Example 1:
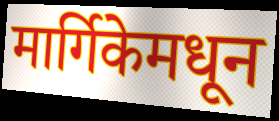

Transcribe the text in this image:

मार्गिकेमधून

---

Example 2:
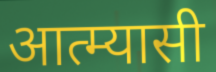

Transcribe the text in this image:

आत्म्यासी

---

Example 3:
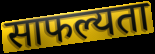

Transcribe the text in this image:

साफल्यता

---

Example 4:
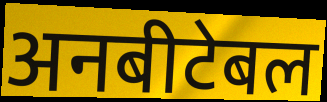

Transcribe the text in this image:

अनबीटेबल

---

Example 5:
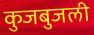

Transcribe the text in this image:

कुजबुजली